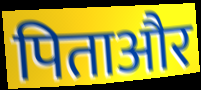
पिताऔर